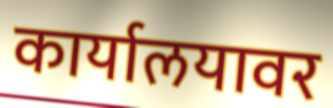
कार्यालयावर